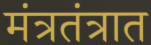
मंत्रतंत्रात